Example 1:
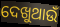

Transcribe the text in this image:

ଦେଖୁଥାଉଁ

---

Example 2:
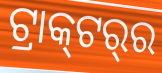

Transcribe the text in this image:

ଟ୍ରାକ୍‍ଟର୍‍ର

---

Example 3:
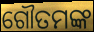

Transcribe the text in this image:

ଗୌତମଙ୍କ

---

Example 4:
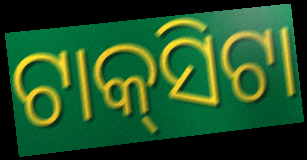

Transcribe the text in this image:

ଟାକ୍‌ସିଟା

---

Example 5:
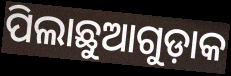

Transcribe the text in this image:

ପିଲାଛୁଆଗୁଡ଼ାକ